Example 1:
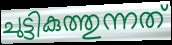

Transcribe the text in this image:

ചുട്ടികുത്തുന്നത്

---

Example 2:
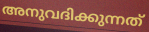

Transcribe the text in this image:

അനുവദിക്കുന്നത്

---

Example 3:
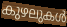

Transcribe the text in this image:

കുഴലുകൾ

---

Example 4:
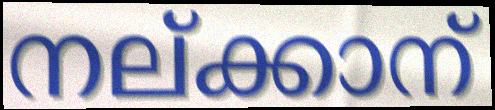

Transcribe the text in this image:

നല്ക്കാന്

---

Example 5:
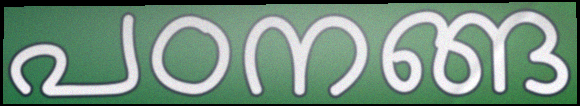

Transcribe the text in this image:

പഠനങ്ങ